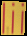
lii